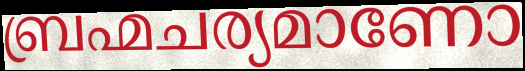
ബ്രഹ്മചര്യമാണോ